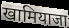
खामियाजा